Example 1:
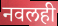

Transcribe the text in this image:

नवलही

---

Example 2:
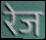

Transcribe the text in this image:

रेज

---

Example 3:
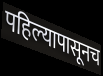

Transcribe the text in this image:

पहिल्यापासूनच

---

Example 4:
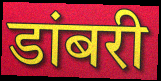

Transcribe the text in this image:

डांबरी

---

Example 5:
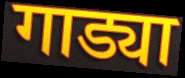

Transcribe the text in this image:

गाड्या